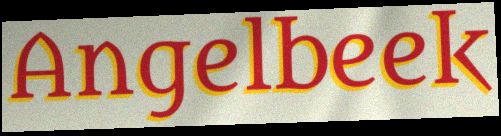
Angelbeek